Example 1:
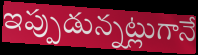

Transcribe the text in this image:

ఇప్పుడున్నట్లుగానే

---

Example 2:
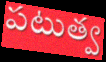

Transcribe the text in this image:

పటుత్వ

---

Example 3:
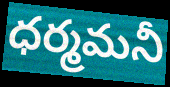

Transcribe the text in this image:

ధర్మమనీ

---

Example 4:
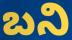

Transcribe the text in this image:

బని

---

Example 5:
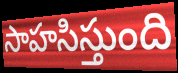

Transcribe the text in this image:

సాహసిస్తుంది